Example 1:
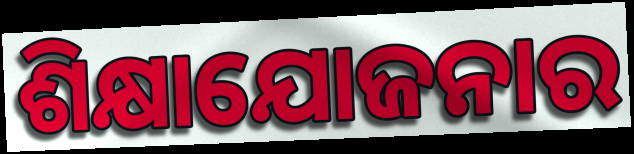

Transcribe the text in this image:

ଶିକ୍ଷାଯୋଜନାର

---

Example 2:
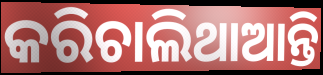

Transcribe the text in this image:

କରିଚାଲିଥାଆନ୍ତି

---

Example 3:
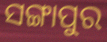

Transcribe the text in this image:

ସଙ୍ଗାପୁର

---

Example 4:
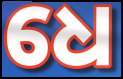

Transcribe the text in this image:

ଧେ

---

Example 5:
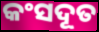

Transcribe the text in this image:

କଂସଦୂତ